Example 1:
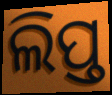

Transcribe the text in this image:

ଲିପ୍ତ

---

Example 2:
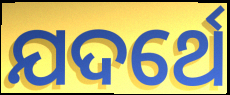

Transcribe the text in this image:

ଯଦର୍ଥେ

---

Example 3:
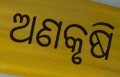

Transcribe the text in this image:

ଅଣକୃଷି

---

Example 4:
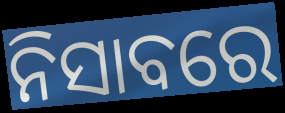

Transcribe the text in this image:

ନିସାବରେ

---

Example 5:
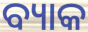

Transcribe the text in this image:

ବ୍ୟାକ